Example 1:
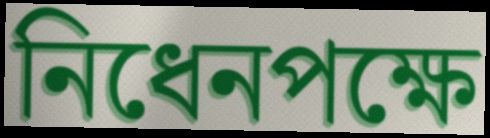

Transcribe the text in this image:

নিধেনপক্ষে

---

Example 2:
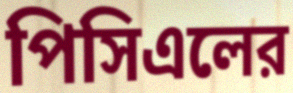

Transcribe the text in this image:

পিসিএলের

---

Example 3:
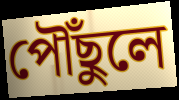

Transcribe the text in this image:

পৌঁছুলে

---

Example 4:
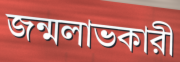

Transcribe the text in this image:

জন্মলাভকারী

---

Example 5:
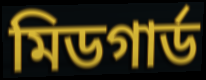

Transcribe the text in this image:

মিডগার্ড